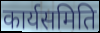
कार्यसमिति